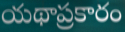
యథాప్రకారం